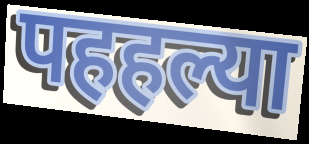
पहहल्या